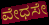
ವೇಧಸೇ